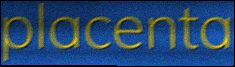
placenta